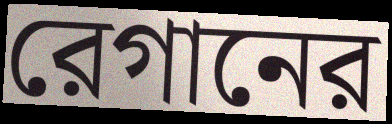
রেগানের